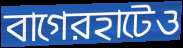
বাগেরহাটেও